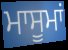
ਮਾਸੂਮਾਂ